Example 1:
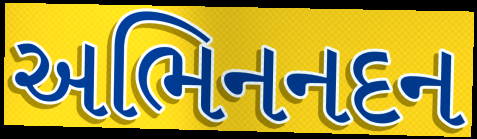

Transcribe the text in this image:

અભિનનદન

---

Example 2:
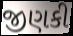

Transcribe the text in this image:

જીણકી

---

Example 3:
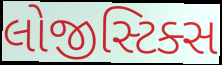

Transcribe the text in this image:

લોજીસ્ટિક્સ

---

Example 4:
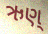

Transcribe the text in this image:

ઋણ્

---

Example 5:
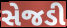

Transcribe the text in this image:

સેજડી